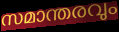
സമാന്തരവും